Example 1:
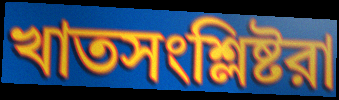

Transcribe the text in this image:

খাতসংশ্লিষ্টরা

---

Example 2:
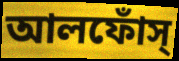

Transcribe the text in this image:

আলফোঁস্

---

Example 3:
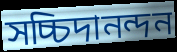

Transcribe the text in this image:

সচ্চিদানন্দন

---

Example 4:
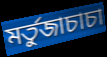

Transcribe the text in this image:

মর্তুজাচাচা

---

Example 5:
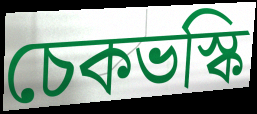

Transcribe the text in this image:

চেকভস্কি